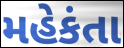
મહેકંતા